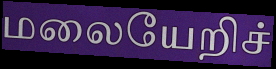
மலையேறிச்